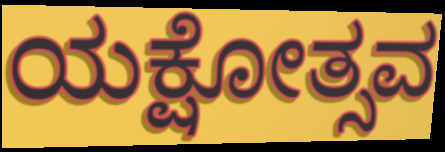
ಯಕ್ಷೋತ್ಸವ